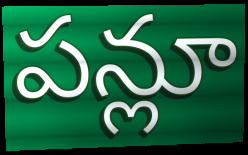
పన్లూ